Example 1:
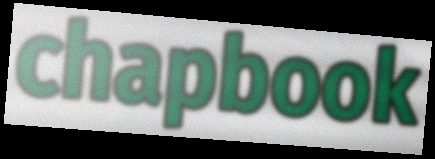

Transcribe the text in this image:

chapbook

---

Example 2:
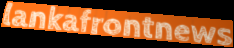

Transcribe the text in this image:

lankafrontnews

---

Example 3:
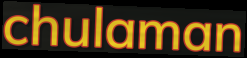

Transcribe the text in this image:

chulaman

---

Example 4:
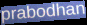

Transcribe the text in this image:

prabodhan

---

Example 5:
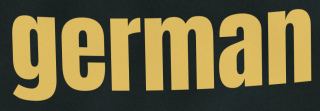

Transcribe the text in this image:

german